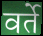
वर्ते